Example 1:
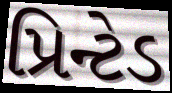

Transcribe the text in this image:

પ્રિન્ટેડ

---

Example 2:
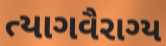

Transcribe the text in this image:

ત્યાગવૈરાગ્ય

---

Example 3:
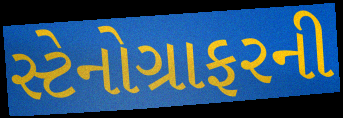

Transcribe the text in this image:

સ્ટેનોગ્રાફરની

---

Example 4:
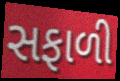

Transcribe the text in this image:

સફાળી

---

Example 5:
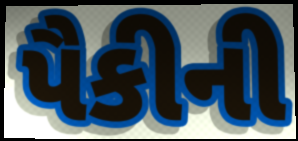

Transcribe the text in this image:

પૈકીની